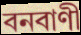
বনবাণী